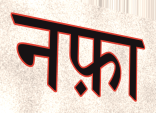
नफ़ा